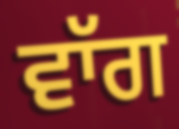
ਵਾੱਗ